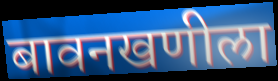
बावनखणीला